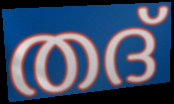
തദ്